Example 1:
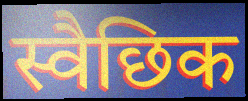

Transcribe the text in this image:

स्वैछिक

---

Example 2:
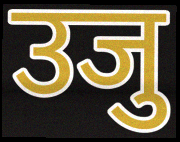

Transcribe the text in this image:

उजु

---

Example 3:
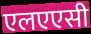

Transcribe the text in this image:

एलएएसी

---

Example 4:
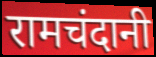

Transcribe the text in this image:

रामचंदानी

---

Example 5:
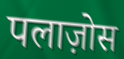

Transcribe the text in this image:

पलाज़ोस